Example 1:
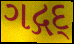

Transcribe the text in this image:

ગદ્ગદ્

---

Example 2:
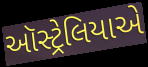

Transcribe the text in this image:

ઑસ્ટ્રેલિયાએ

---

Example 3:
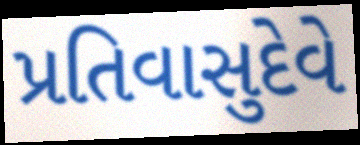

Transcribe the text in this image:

પ્રતિવાસુદેવે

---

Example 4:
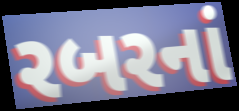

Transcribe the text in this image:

રબરનાં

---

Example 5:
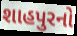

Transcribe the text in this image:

શાહપુરનો